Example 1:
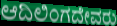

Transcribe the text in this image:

ಆದಿಲಿಂಗದೇವರು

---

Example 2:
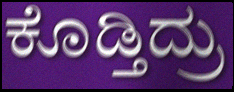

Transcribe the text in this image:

ಕೊಡ್ತಿದ್ರು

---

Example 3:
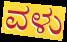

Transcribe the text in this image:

ವಳು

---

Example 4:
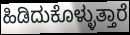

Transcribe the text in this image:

ಹಿಡಿದುಕೊಳ್ಳುತ್ತಾರೆ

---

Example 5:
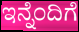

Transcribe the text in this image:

ಇನ್ನೆಂದಿಗೆ